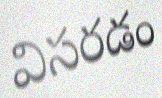
విసరడం